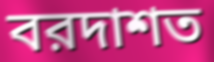
বরদাশত